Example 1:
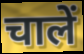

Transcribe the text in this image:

चालें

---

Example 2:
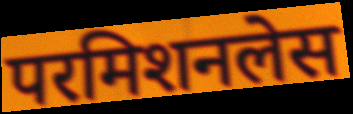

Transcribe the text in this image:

परमिशनलेस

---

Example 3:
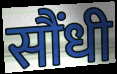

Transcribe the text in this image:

सौंधी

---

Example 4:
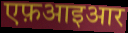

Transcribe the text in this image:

एफ़आइआर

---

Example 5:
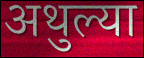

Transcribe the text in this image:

अथुल्या